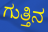
ಗುತ್ತಿನ